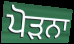
ਪੋੜਨਾ